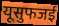
यूसुफजई